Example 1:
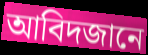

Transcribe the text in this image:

আবিদজানে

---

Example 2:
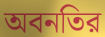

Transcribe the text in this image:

অবনতির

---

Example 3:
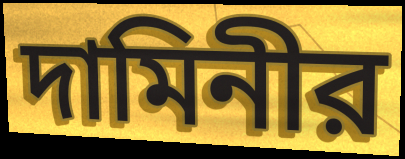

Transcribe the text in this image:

দামিনীর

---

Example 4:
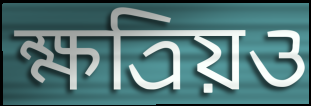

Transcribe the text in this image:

ক্ষত্রিয়ও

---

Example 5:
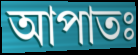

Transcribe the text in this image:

আপাতঃ